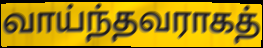
வாய்ந்தவராகத்